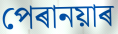
পেৰানয়াৰ